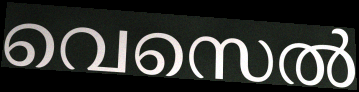
വെസെൽ